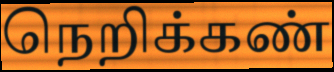
நெறிக்கண்